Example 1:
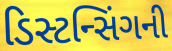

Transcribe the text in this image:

ડિસ્ટન્સિંગની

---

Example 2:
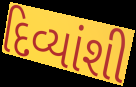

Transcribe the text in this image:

દિવ્યાંશી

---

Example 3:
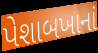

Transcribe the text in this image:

પેશાબખાનાં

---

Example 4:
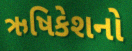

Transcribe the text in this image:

ઋષિકેશનો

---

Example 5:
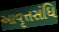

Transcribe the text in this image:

આવૃત્તસંધિ